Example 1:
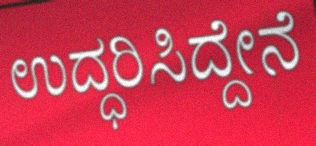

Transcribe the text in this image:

ಉದ್ಧರಿಸಿದ್ದೇನೆ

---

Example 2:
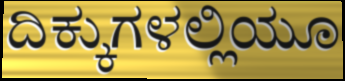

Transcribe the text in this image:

ದಿಕ್ಕುಗಳಲ್ಲಿಯೂ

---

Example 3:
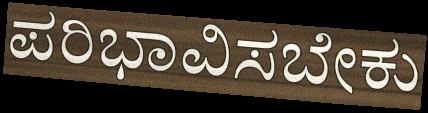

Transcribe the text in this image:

ಪರಿಭಾವಿಸಬೇಕು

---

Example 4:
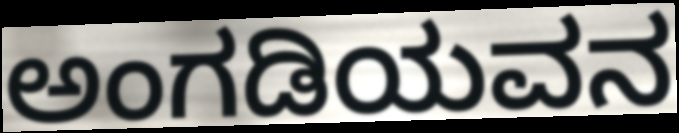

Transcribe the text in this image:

ಅಂಗಡಿಯವನ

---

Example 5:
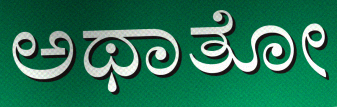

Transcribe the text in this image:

ಅಥಾತೋ